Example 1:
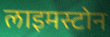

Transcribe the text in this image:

लाइमस्टोन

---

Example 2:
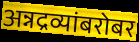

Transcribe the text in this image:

अन्नद्रव्यांबरोबर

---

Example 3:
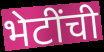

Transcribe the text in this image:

भेटींची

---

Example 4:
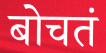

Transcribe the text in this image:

बोचतं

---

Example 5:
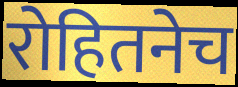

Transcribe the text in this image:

रोहितनेच